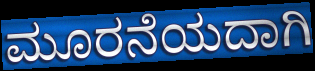
ಮೂರನೆಯದಾಗಿ